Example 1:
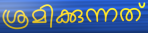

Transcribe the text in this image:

ശ്രമിക്കുന്നത്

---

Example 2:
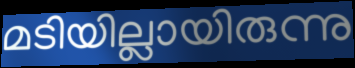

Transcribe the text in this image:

മടിയില്ലായിരുന്നു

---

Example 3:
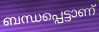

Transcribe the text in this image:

ബന്ധപ്പെട്ടാണ്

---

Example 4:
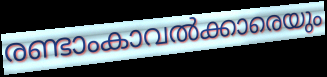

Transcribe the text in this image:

രണ്ടാംകാവൽക്കാരെയും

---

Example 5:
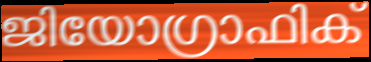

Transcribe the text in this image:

ജിയോഗ്രാഫിക്